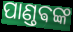
ପାଣ୍ଡଵଙ୍କ